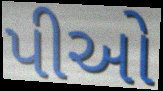
પીઓ